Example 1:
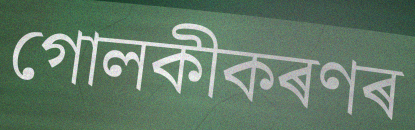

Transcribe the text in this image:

গোলকীকৰণৰ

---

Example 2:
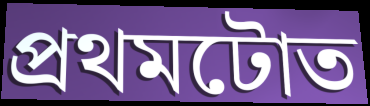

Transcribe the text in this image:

প্ৰথমটোত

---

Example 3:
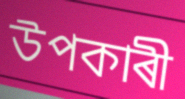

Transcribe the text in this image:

উপকাৰী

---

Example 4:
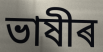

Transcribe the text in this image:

ভাষীৰ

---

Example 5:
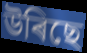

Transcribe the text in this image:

উৰিছে